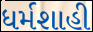
ધર્મશાહી